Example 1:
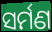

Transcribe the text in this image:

ସର୍ମଣ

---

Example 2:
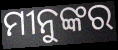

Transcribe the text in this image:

ମୀନୁଙ୍କର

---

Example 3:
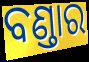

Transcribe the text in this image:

ବଣ୍ଡାର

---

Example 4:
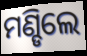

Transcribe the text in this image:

ମଣ୍ଡିଲେ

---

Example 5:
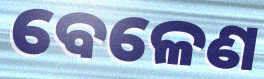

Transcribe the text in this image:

ବେଳେଣ